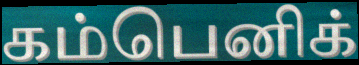
கம்பெனிக்